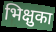
भिक्षुका